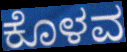
ಕೊಳವ